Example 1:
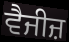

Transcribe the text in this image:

ਵੈਜੀਜ਼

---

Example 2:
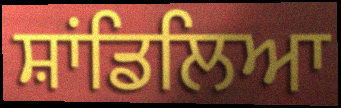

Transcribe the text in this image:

ਸ਼ਾਂਡਿਲਿਆ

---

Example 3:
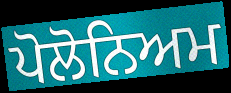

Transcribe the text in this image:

ਪੋਲੋਨਿਅਮ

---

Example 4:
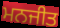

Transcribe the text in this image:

ਮਨਜੀਤ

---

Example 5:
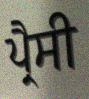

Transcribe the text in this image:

ਪ੍ਰੈਸੀ